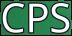
CPS